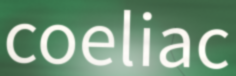
coeliac